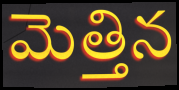
మెత్తిన